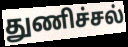
துணிச்சல்